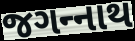
જગન્‍નાથ